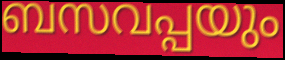
ബസവപ്പയും